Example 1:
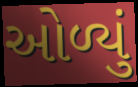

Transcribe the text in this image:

ઓળ્યું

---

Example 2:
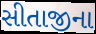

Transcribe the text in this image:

સીતાજીના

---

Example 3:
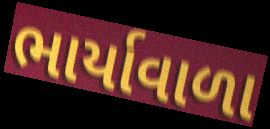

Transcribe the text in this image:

ભાર્યાવાળા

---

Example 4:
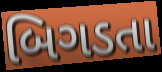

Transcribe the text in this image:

બિગડતા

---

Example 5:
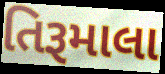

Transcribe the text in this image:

તિરૂમાલા